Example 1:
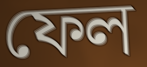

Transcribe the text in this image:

ফেল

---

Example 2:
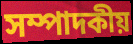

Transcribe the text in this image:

সম্পাদকীয়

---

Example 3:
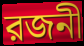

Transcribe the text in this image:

রজনী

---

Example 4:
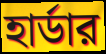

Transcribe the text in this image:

হার্ডার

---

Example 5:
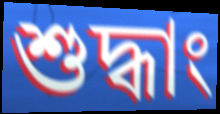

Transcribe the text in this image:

শুদ্ধাং